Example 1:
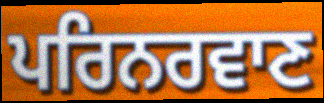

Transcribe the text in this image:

ਪਰਿਨਰਵਾਣ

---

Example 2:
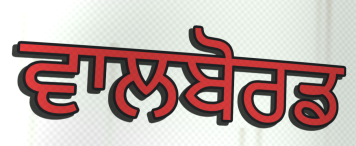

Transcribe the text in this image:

ਵਾਲਬੋਰਡ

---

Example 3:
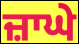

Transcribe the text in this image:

ਜ਼ਾਘੇ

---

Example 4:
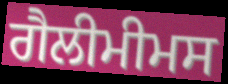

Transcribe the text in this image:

ਗੈਲੀਮੀਮਸ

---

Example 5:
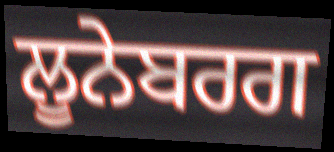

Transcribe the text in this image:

ਲੂਨੇਬਰਗ